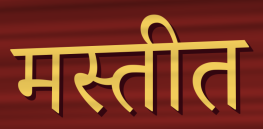
मस्तीत